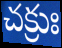
చక్రుః